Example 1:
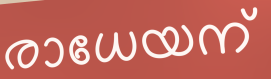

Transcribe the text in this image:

രാധേയന്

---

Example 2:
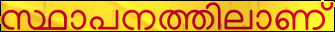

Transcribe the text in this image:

സ്ഥാപനത്തിലാണ്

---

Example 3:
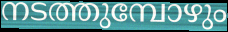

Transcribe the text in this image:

നടത്തുമ്പോഴും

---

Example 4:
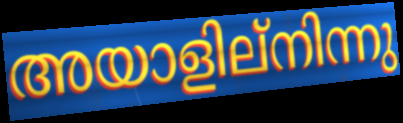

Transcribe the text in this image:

അയാളില്നിന്നു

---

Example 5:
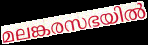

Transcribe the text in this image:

മലങ്കരസഭയിൽ